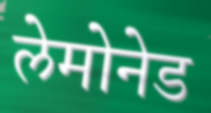
लेमोनेड